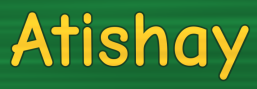
Atishay